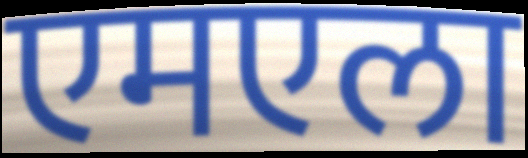
एमएला